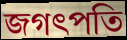
জগৎপতি